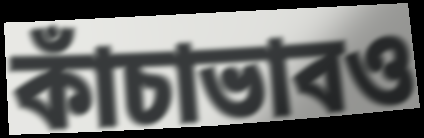
কাঁচাভাবও